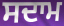
ਸਦਾਮ